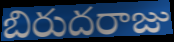
బిరుదరాజు